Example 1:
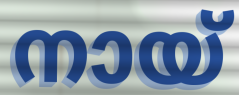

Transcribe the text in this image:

നായ്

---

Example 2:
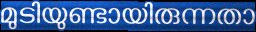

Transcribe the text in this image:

മുടിയുണ്ടായിരുന്നതാ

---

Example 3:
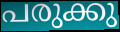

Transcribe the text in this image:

പരുക്കു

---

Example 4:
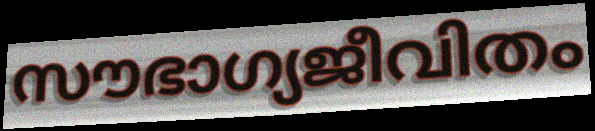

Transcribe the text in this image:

സൗഭാഗ്യജീവിതം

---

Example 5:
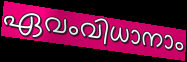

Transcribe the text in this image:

ഏവംവിധാനാം